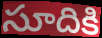
సూదికి